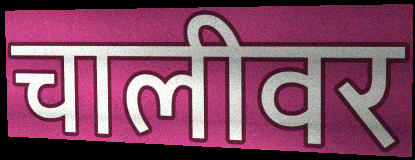
चालीवर